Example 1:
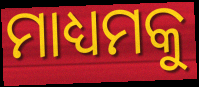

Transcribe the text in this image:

ମାଧ୍ୟମକୁ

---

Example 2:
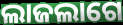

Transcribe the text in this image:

ଲାଜଲାଗେ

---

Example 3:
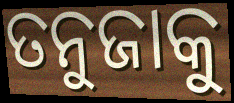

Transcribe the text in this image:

ତନୁଜାକୁ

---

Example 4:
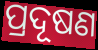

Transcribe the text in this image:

ପ୍ରଦୂଷଣ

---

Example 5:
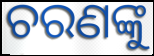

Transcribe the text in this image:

ଚରଣଙ୍କୁ